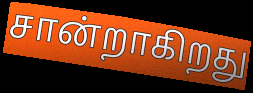
சான்றாகிறது